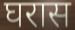
घरास